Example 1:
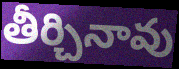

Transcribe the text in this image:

తీర్చినావు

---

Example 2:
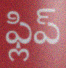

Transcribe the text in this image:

ఫ్లిప్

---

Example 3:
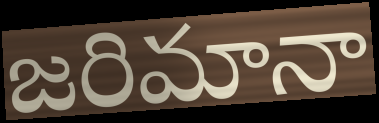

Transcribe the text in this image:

జరిమానా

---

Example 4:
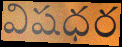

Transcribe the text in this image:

విషధర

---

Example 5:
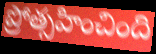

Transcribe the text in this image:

ప్రోత్సహించింది